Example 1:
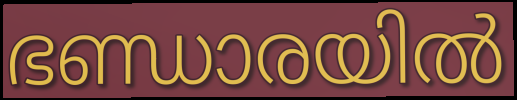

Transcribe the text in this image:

ഭണ്ഡാരയിൽ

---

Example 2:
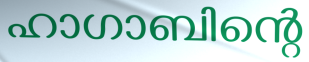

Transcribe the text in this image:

ഹാഗാബിന്റെ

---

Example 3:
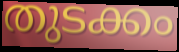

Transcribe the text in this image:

തുടക്കം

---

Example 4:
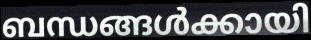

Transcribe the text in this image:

ബന്ധങ്ങൾക്കായി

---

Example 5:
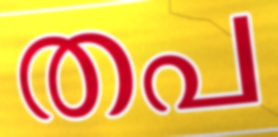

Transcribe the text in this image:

തപ